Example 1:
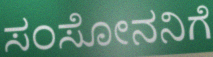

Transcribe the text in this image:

ಸಂಸೋನನಿಗೆ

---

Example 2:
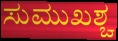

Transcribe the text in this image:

ಸುಮುಖಶ್ಚ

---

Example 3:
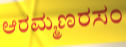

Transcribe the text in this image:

ಆರಮ್ಮಣರಸಂ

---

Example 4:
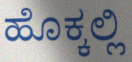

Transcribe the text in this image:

ಹೊಕ್ಕಲ್ಲಿ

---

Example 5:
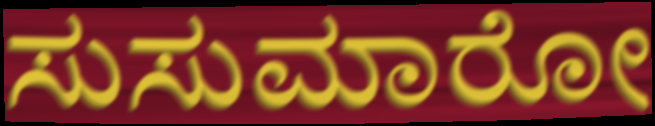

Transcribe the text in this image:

ಸುಸುಮಾರೋ